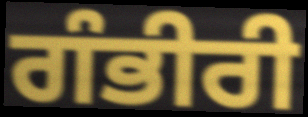
ਗੰਭੀਰੀ